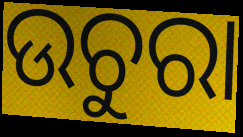
ଉଚୁରା